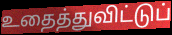
உதைத்துவிட்டுப்